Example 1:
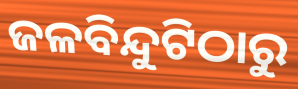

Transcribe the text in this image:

ଜଳବିନ୍ଦୁଟିଠାରୁ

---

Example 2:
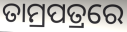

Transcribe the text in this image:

ତାମ୍ରପତ୍ରରେ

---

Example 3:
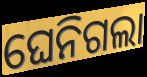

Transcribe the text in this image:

ଘେନିଗଲା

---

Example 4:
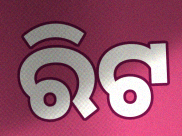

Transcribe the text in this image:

ରିଟ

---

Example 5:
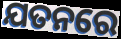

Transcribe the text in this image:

ଯତନରେ